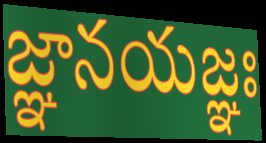
జ్ఞానయజ్ఞః